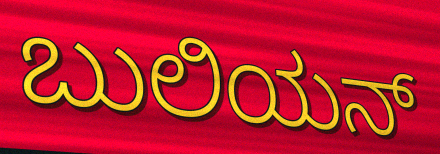
ಬುಲಿಯನ್